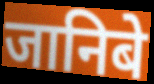
जानिबे